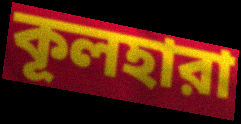
কূলহারা